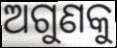
ଅଗୁଣକୁ